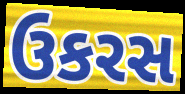
ઉકરસ